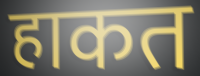
हाकत